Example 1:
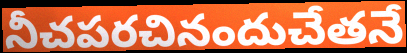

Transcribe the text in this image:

నీచపరచినందుచేతనే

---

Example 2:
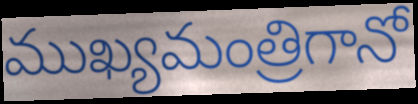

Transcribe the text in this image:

ముఖ్యమంత్రిగానో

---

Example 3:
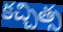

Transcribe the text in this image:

కచ్చిత్స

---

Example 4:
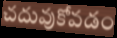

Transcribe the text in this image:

చదువుకోవడం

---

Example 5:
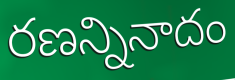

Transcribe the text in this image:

రణన్నినాదం